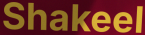
Shakeel